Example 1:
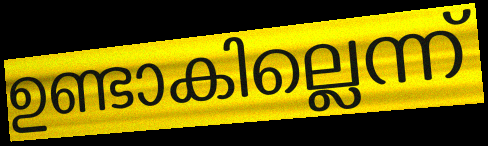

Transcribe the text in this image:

ഉണ്ടാകില്ലെന്ന്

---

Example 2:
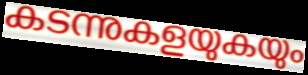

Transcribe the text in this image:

കടന്നുകളയുകയും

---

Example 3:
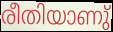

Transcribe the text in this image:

രീതിയാണു്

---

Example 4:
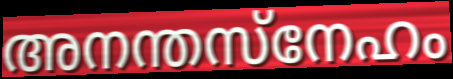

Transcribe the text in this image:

അനന്തസ്നേഹം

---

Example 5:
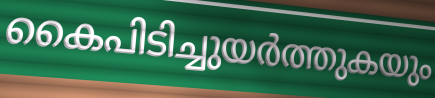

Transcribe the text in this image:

കൈപിടിച്ചുയർത്തുകയും